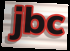
jbc